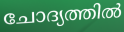
ചോദ്യത്തിൽ